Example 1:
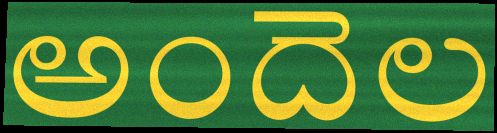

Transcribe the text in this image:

అందెల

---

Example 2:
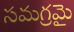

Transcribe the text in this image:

సమగ్రమై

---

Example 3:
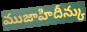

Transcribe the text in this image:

ముజాహిదీన్కు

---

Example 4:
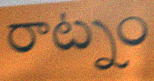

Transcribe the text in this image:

రాట్నం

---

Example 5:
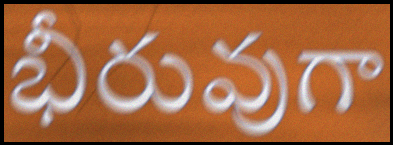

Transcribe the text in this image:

భీరువుగా